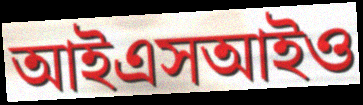
আইএসআইও